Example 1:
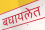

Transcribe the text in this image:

बघायलेत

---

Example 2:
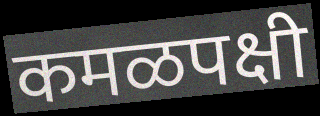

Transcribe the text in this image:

कमळपक्षी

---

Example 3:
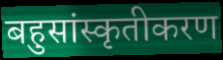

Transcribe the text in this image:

बहुसांस्कृतीकरण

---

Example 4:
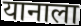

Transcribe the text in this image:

यानाला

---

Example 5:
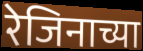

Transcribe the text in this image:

रेजिनाच्या